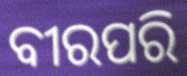
ବୀରପରି